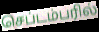
செப்டம்பரில்